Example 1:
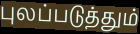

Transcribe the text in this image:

புலப்படுத்தும்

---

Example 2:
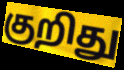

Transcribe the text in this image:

குறிது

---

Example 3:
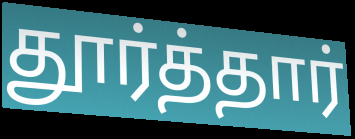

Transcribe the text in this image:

தூர்த்தார்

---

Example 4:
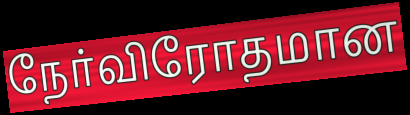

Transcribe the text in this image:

நேர்விரோதமான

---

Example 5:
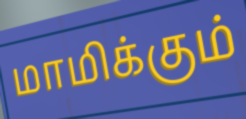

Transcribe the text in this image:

மாமிக்கும்